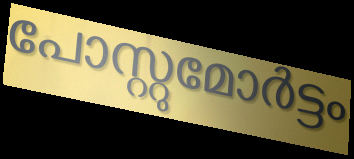
പോസ്റ്റുമോർട്ടം